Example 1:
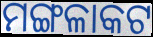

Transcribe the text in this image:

ମଙ୍ଗଳାକଟ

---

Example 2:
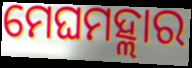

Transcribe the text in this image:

ମେଘମହ୍ଲାର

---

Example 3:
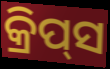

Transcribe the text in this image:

କ୍ରିପ୍‍ସ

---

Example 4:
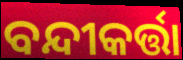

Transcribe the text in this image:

ବନ୍ଦୀକର୍ତ୍ତା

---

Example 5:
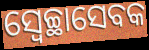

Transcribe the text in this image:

ସ୍ୱେଚ୍ଛାସେବକ